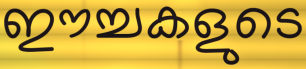
ഈച്ചകളുടെ